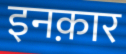
इनक़ार